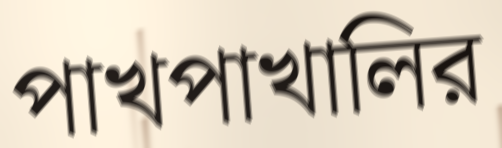
পাখপাখালির